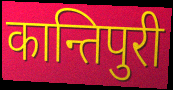
कान्तिपुरी